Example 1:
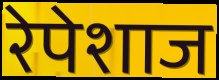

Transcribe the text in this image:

रेपेशाज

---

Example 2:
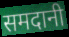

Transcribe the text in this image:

समदानी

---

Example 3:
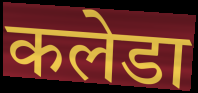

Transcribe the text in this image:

कलेडा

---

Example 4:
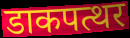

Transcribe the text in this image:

डाकपत्थर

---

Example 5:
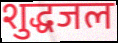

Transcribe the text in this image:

शुद्धजल